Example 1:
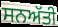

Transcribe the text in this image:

ਸਨਅੱਤੀ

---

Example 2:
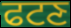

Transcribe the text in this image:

ਫਟਣ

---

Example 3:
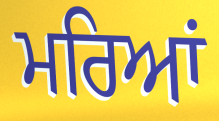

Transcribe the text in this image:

ਮਰਿਆਂ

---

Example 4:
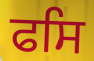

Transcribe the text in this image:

ਫਸਿ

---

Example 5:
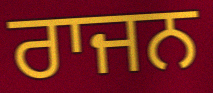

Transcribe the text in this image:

ਰਾਜਨ